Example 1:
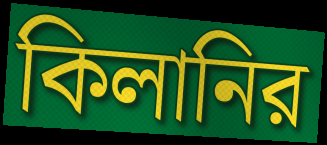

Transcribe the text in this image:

কিলানির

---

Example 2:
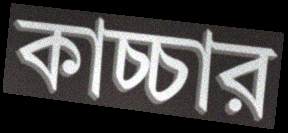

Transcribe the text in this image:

কাচ্চার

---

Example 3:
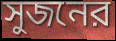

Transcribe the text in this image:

সুজনের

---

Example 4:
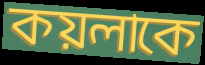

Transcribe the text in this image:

কয়লাকে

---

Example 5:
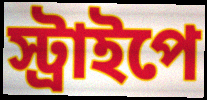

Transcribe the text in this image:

স্ট্রাইপে